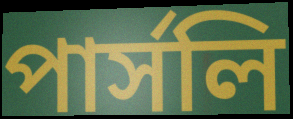
পার্সলি